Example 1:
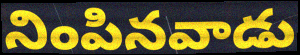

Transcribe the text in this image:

నింపినవాడు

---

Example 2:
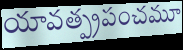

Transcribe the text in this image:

యావత్ప్రపంచమూ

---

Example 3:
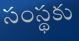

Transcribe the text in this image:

సంస్థకు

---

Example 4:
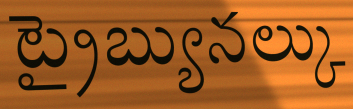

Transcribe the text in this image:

ట్రైబ్యునల్కు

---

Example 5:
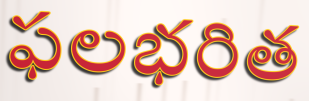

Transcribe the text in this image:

ఫలభరిత